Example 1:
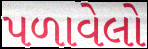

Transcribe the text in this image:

પળાવેલો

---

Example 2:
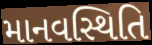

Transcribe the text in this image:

માનવસ્થિતિ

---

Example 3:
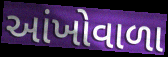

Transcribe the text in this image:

આંખોવાળા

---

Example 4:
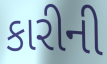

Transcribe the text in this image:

કારીની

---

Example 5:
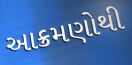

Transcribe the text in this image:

આક્રમણોથી